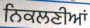
ਨਿਕਲਣੀਆਂ